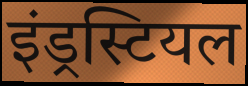
इंड्रस्टियल